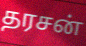
தரசன்